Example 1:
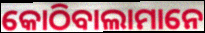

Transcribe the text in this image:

କୋଠିବାଲାମାନେ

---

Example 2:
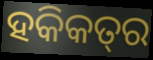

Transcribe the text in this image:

ହକିକତ୍‌ର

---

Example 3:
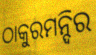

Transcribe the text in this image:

ଠାକୁରମନ୍ଦିର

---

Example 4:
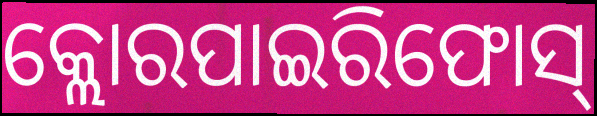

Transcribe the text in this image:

କ୍ଲୋରପାଇରିଫୋସ୍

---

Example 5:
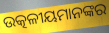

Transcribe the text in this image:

ଉତ୍କଳୀୟମାନଙ୍କର